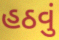
હઠવું